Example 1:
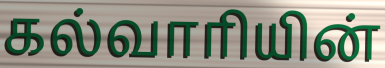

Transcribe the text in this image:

கல்வாரியின்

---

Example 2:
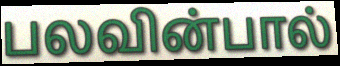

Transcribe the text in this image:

பலவின்பால்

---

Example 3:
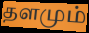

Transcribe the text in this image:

தளமும்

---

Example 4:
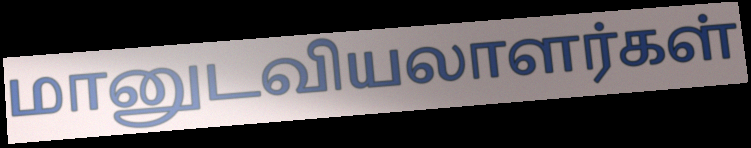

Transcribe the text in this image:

மானுடவியலாளர்கள்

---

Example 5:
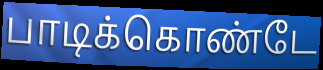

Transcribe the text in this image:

பாடிக்கொண்டே